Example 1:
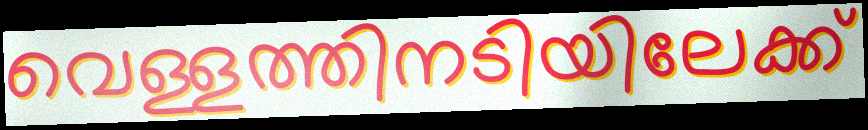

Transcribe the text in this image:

വെള്ളത്തിനടിയിലേക്ക്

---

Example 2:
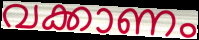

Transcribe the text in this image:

വക്കാണം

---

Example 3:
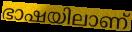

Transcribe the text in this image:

ഭാഷയിലാണ്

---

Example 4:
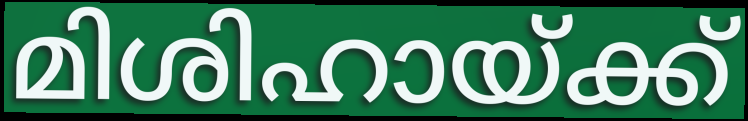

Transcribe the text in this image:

മിശിഹായ്ക്ക്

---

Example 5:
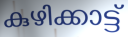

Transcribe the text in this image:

കുഴിക്കാട്ട്